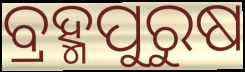
ବ୍ରହ୍ମପୁରୁଷ